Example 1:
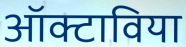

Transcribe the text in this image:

ऑक्टाविया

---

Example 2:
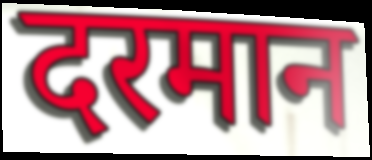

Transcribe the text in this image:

दरमान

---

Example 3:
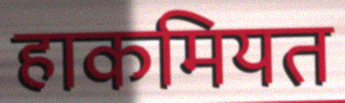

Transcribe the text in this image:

हाकमियत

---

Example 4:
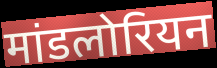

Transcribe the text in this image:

मांडलोरियन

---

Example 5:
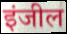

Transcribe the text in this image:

इंजील